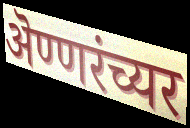
ऄण्णरंच्यर